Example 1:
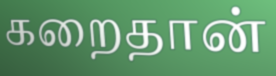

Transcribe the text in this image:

கறைதான்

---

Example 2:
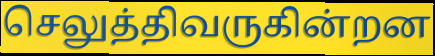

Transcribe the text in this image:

செலுத்திவருகின்றன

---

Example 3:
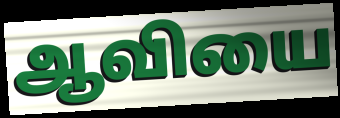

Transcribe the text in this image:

ஆவியை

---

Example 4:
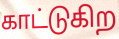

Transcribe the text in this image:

காட்டுகிற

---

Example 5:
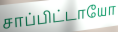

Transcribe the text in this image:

சாப்பிட்டாயோ